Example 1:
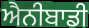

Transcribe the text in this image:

ਐਨੀਬਾਡੀ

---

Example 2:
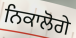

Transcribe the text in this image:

ਨਿਕਾਲੋਗੇ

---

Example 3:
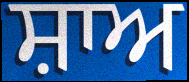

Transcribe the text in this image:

ਸ਼ਾਅ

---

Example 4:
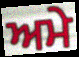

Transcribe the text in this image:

ਅਮੇ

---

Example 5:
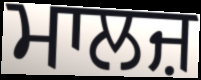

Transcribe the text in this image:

ਮਾਲਜ਼